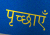
पृच्छाएँ